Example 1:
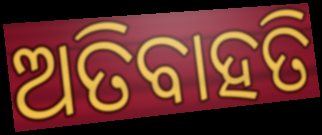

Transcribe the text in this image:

ଅତିବାହତି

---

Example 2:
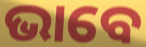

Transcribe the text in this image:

ଭାବେ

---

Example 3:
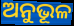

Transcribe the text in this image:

ଅନୁଭୂଳ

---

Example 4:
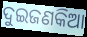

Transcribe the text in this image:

ଦୁଇଜଣକିଆ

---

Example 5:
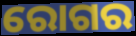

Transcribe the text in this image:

ରୋଗର